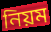
নিয়ম